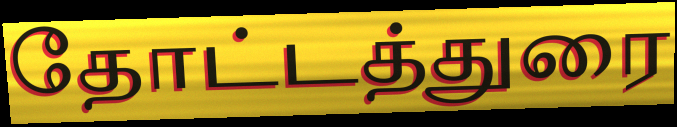
தோட்டத்துரை